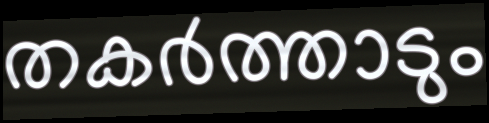
തകർത്താടും